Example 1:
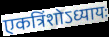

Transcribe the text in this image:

एकत्रिंशोऽध्यायः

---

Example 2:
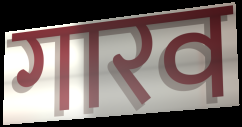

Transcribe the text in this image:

गारव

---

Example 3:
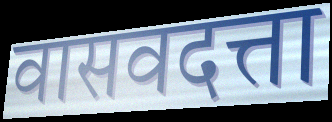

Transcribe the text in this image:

वासवदत्ता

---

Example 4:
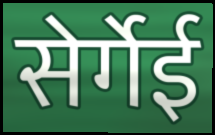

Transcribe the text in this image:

सेर्गेई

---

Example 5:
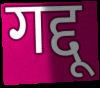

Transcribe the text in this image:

गद्दू